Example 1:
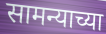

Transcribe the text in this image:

सामन्याच्या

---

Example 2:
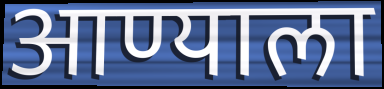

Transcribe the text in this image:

आण्याला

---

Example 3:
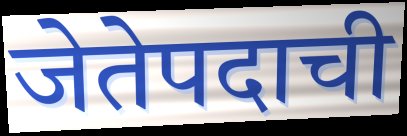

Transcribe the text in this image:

जेतेपदाची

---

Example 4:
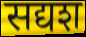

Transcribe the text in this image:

सद्यश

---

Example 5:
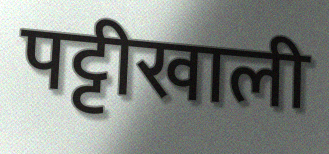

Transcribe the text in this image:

पट्टीखाली